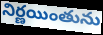
నిర్ణయింతును